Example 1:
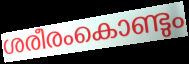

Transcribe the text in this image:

ശരീരംകൊണ്ടും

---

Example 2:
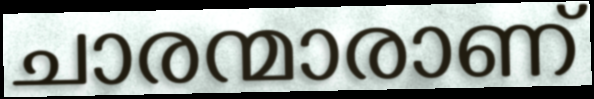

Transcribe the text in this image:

ചാരന്മാരാണ്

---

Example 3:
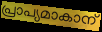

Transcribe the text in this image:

പ്രാപ്യമാകാന്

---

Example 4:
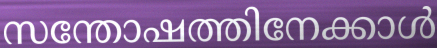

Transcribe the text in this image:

സന്തോഷത്തിനേക്കാൾ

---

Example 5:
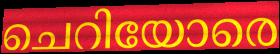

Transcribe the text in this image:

ചെറിയോരെ